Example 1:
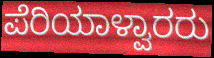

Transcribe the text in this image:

ಪೆರಿಯಾಳ್ವಾರರು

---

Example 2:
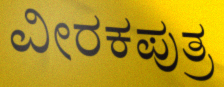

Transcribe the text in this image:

ವೀರಕಪುತ್ರ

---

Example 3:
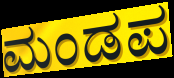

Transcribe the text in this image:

ಮಂಡಪ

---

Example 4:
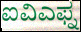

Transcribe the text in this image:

ಐವಿಎಫ್ನ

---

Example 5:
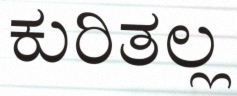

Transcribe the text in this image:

ಕುರಿತಲ್ಲ